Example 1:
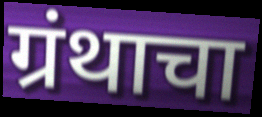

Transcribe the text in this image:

ग्रंथाचा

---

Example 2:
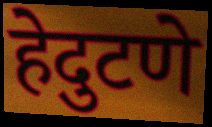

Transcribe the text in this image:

हेदुटणे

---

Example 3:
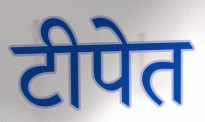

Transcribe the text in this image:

टीपेत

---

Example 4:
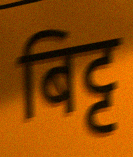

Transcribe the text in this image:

बिट्ट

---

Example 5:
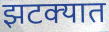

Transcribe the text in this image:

झटक्‍यात